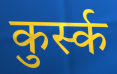
कुर्स्क